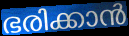
ഭരിക്കാൻ